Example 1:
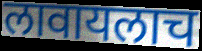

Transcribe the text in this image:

लावायलाच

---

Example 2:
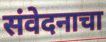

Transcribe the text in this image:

संवेदनाचा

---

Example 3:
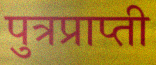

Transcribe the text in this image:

पुत्रप्राप्ती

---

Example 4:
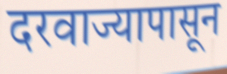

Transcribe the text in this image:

दरवाज्यापासून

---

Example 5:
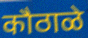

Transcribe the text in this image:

कौठाळे